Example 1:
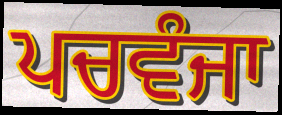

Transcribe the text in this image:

ਪਚਵੰਜਾ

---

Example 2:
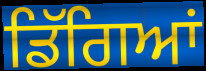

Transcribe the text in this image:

ਡਿੱਗਿਆਂ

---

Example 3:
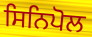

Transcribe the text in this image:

ਸਿਨਿਪੋਲ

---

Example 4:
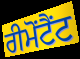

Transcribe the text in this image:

ਰੀਮੋਂਟੈਂਟ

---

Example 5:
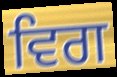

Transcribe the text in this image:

ਵਿਗ